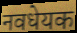
नवधेयक